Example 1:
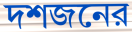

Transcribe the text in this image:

দশজনের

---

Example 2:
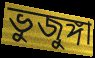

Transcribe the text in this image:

ভুজুঙ্গা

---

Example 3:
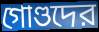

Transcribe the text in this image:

গোণ্ডদের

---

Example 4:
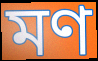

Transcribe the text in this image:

মণ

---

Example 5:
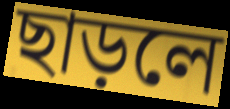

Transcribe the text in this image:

ছাড়লে